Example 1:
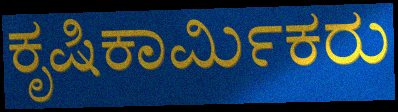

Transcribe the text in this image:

ಕೃಷಿಕಾರ್ಮಿಕರು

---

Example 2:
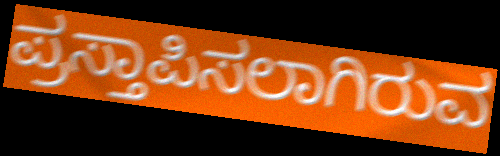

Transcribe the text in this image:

ಪ್ರಸ್ತಾಪಿಸಲಾಗಿರುವ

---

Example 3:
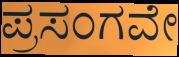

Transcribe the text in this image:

ಪ್ರಸಂಗವೇ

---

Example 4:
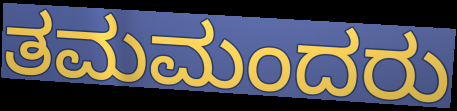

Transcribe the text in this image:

ತಮಮಂದರು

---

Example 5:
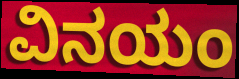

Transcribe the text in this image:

ವಿನಯಂ